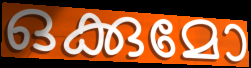
ഒക്കുമോ